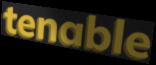
tenable